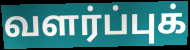
வளர்ப்புக்